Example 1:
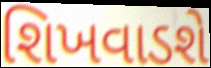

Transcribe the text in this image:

શિખવાડશે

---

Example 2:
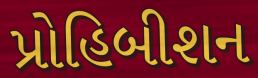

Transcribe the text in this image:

પ્રોહિબીશન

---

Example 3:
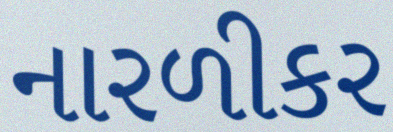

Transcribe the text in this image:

નારળીકર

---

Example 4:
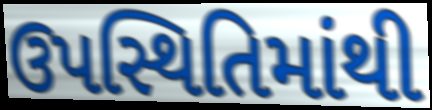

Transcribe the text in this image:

ઉપસ્થિતિમાંથી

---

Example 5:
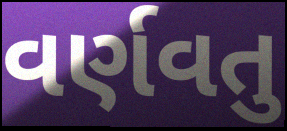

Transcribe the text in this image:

વર્ણવતુ